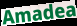
Amadea